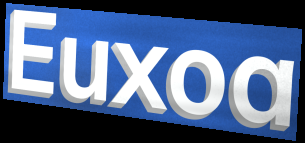
Euxoa